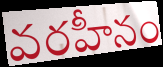
వరహీనం